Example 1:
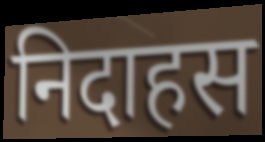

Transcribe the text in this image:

निदाहस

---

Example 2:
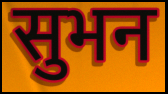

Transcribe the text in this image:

सुभन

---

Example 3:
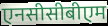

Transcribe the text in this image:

एनसीसीबीएम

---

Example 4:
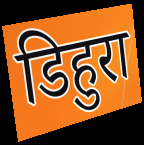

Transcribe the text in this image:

डिहुरा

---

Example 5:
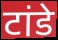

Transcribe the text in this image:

टांडे